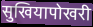
सुखियापोखरी